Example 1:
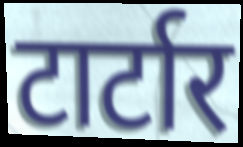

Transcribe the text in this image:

टार्टार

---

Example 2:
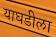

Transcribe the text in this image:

याघडीला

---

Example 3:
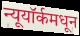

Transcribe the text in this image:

न्यूयॉर्कमधून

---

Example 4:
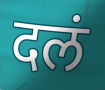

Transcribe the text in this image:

दलं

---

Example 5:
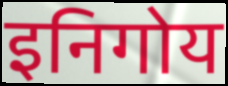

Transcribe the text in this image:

इनिगोय